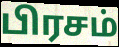
பிரசம்